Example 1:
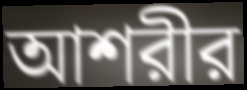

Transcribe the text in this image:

আশরীর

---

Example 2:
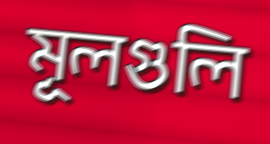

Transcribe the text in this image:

মূলগুলি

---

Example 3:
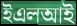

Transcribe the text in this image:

ইএলআই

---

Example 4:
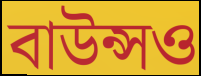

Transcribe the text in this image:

বাউন্সও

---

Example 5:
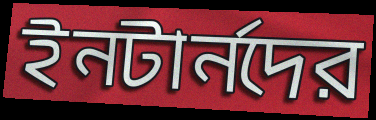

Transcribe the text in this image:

ইনটার্নদের